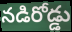
నడిరోడ్డు